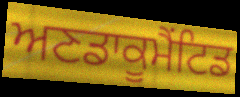
ਅਣਡਾਕੂਮੈਂਟਿਡ